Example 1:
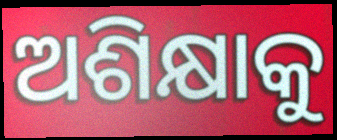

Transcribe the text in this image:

ଅଶିକ୍ଷାକୁ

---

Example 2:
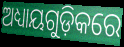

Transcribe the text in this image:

ଅଧ୍ୟାୟଗୁଡ଼ିକରେ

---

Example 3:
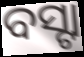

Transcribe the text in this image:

ବସ୍ଟା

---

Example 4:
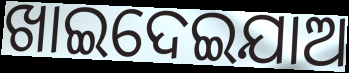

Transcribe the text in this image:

ଖାଇଦେଇଯାଅ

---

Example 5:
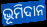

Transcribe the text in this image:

ଭୂମିଦାନ